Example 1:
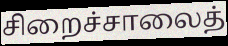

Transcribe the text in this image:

சிறைச்சாலைத்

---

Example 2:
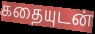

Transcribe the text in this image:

கதையுடன்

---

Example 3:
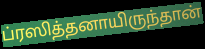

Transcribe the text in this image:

ப்ரஸித்தனாயிருந்தான்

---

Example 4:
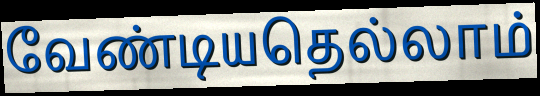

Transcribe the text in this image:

வேண்டியதெல்லாம்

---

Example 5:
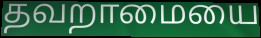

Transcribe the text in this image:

தவறாமையை